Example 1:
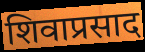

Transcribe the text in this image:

शिवाप्रसाद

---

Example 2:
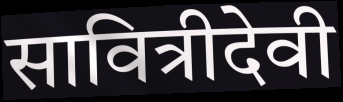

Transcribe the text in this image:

सावित्रीदेवी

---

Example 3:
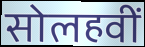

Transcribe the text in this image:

सोलहवीं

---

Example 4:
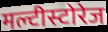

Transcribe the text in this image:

मल्टीस्टोरेज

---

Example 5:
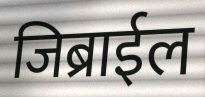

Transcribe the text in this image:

जिब्राईल